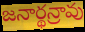
జనార్థన్రావు